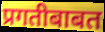
प्रगतीबाबत